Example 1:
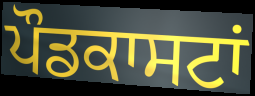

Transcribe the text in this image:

ਪੌਡਕਾਸਟਾਂ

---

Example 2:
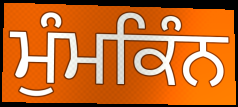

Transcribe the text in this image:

ਮੁੰਮਕਿੰਨ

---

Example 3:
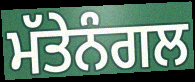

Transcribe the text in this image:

ਮੱਤੇਨੰਗਲ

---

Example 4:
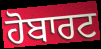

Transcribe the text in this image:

ਹੋਬਾਰਟ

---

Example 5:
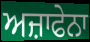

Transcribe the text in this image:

ਅਜ਼ਾਫੇਨਾ